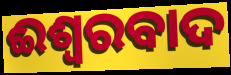
ଈଶ୍ବରବାଦ